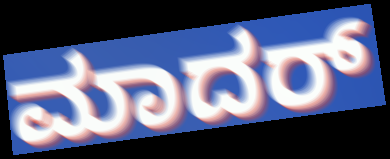
ಮಾದರ್